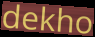
dekho